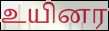
உயினர